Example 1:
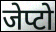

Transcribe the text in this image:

जेप्टो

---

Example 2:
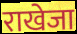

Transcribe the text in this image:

राखेजा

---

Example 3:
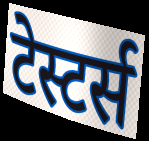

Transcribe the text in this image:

टेस्टर्स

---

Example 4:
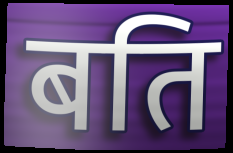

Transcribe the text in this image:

बति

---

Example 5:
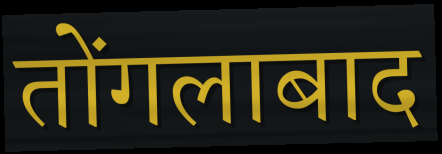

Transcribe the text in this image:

तोंगलाबाद